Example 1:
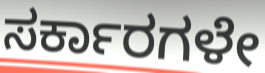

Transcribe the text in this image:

ಸರ್ಕಾರಗಳೇ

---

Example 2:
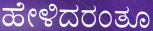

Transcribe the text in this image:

ಹೇಳಿದರಂತೂ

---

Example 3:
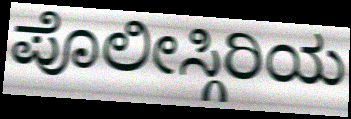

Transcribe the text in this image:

ಪೊಲೀಸ್ಗಿರಿಯ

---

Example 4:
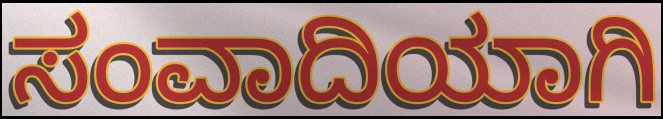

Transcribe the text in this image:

ಸಂವಾದಿಯಾಗಿ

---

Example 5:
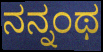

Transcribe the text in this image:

ನನ್ನಂಥ